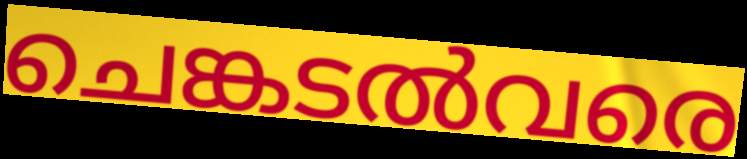
ചെങ്കടൽവരെ